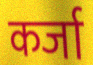
कर्जा